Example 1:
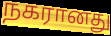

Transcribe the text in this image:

நகரானது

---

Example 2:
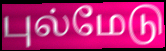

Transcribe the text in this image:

புல்மேடு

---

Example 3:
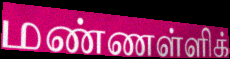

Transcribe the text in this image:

மண்ணள்ளிக்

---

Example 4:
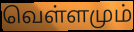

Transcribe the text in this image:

வெள்ளமும்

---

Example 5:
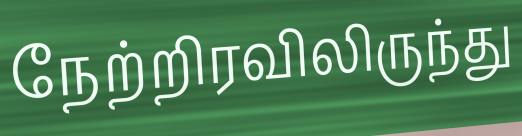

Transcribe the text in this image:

நேற்றிரவிலிருந்து